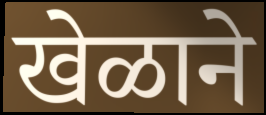
खेळाने